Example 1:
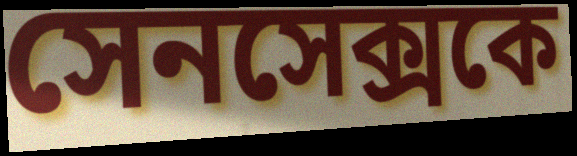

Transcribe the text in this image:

সেনসেক্সকে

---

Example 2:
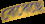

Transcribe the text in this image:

বেধেছে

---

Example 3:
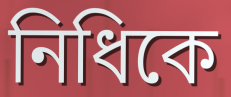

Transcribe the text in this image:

নিধিকে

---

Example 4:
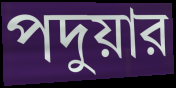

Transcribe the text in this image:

পদুয়ার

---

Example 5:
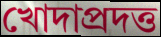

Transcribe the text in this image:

খোদাপ্রদত্ত